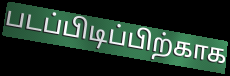
படப்பிடிப்பிற்காக